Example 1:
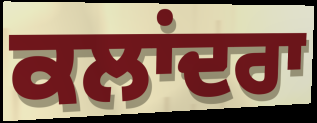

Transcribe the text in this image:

ਕਲਾਂਦਰਾ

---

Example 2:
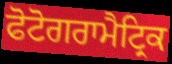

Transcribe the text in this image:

ਫੋਟੋਗਰਾਮੈਟ੍ਰਿਕ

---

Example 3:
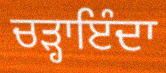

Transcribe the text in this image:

ਚੜ੍ਹਾਇੰਦਾ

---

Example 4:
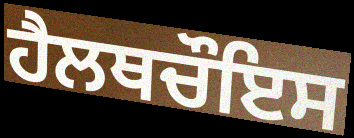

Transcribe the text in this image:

ਹੈਲਥਚੌਇਸ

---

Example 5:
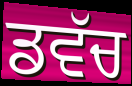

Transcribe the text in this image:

ਡਵੱਚ